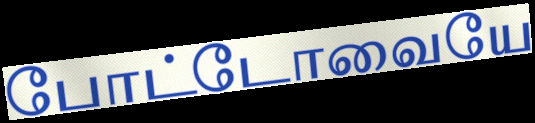
போட்டோவையே